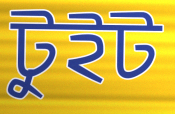
টুইট